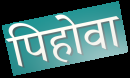
पिहोवा